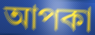
আপকা